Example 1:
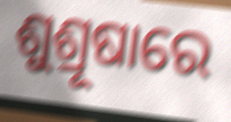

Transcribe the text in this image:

ଶୁଶ୍ରୂଷାରେ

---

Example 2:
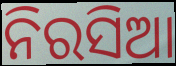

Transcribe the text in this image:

ନିରସିଆ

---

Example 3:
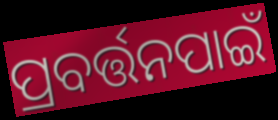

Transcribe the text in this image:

ପ୍ରବର୍ତ୍ତନପାଇଁ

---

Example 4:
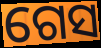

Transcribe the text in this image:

ଗେସ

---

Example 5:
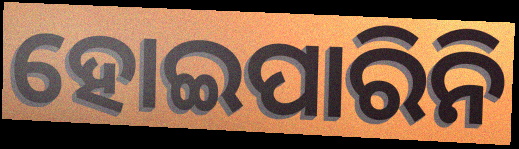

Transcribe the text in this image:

ହୋଇପାରିନି